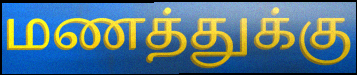
மணத்துக்கு